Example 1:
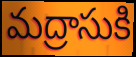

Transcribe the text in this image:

మద్రాసుకి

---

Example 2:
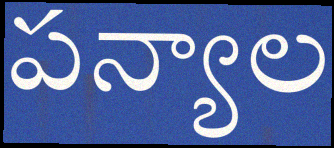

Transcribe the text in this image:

పన్యాల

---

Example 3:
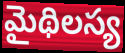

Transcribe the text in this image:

మైథిలస్య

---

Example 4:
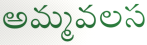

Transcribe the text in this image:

అమ్మవలస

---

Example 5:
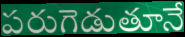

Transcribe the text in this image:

పరుగెడుతూనే